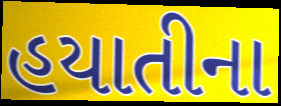
હયાતીના